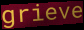
grieve